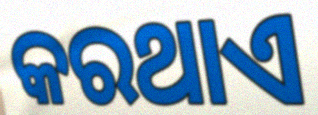
କରଥାଏ